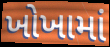
ખોખામાં